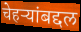
चेहऱ्यांबद्दल